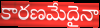
కారణమేదైనా